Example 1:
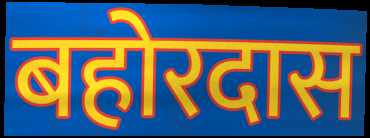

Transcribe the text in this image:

बहोरदास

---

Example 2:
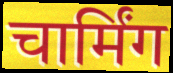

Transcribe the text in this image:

चार्मिंग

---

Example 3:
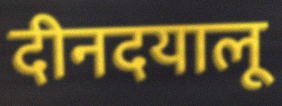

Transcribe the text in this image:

दीनदयालू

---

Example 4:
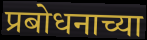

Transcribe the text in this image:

प्रबोधनाच्या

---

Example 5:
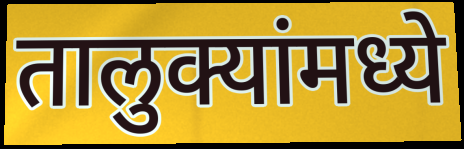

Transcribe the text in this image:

तालुक्यांमध्ये